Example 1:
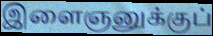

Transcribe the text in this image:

இளைஞனுக்குப்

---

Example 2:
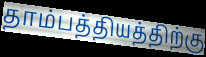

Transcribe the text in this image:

தாம்பத்தியத்திற்கு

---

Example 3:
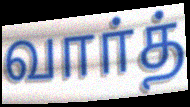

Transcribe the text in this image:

வார்த்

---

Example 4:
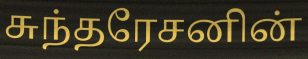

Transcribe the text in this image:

சுந்தரேசனின்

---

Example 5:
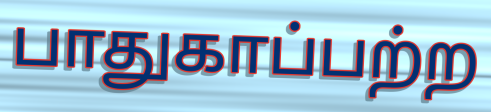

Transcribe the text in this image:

பாதுகாப்பற்ற